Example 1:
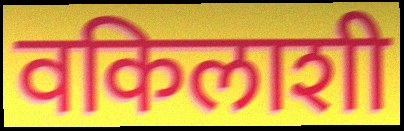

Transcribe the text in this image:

वकिलाशी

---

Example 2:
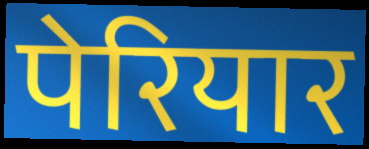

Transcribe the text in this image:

पेरियार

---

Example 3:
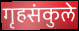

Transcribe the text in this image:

गृहसंकुले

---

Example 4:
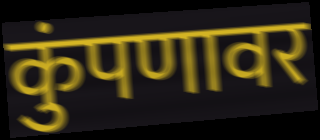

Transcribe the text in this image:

कुंपणावर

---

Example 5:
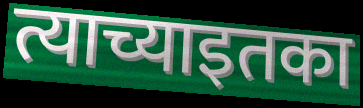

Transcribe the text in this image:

त्याच्याइतका